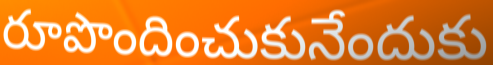
రూపొందించుకునేందుకు